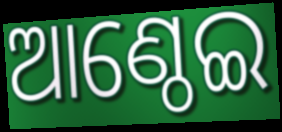
ଆଣ୍ଠେଇ